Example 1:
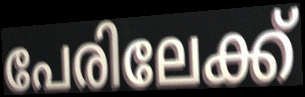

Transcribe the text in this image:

പേരിലേക്ക്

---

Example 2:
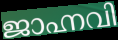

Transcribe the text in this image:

ജാഹ്നവി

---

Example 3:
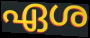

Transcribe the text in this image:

ഏശ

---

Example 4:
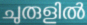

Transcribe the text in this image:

ചുരുളിൽ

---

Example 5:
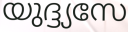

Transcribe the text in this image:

യുദ്ദ്യസേ